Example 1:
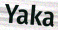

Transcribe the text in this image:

Yaka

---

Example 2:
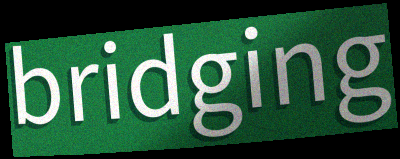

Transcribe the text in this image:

bridging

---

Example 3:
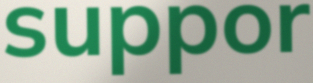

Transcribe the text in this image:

suppor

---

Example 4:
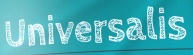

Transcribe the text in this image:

Universalis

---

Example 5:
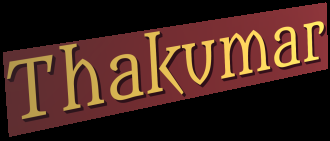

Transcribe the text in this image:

Thakumar